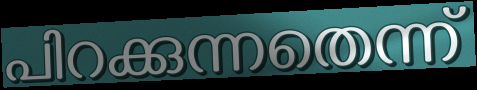
പിറക്കുന്നതെന്ന്